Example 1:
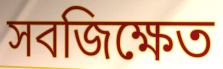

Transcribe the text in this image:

সবজিক্ষেত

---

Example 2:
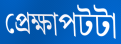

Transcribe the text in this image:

প্রেক্ষাপটটা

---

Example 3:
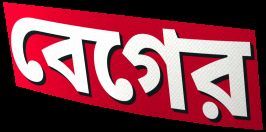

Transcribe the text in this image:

বেগের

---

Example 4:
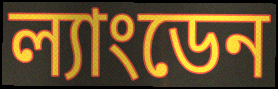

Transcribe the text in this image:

ল্যাংডেন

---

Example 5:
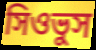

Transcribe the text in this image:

সিওভুস